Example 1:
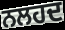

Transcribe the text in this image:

ਨਲਹਦ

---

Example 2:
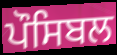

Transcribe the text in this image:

ਪੌਸਿਬਲ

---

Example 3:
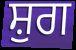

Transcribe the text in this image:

ਸ਼ੁਗ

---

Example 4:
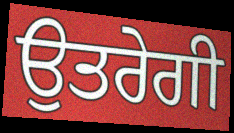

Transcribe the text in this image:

ਉਤਰੇਗੀ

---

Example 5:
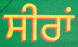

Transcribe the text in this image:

ਸੀਰਾਂ